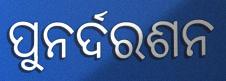
ପୁନର୍ଦରଶନ